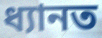
ধ্যানত